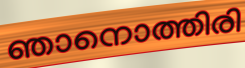
ഞാനൊത്തിരി